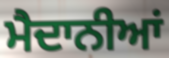
ਮੈਦਾਨੀਆਂ